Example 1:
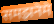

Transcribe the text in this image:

समझनेमे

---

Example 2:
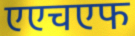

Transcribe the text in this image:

एएचएफ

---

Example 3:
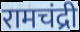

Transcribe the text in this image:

रामचंद्री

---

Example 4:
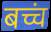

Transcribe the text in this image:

बच्चं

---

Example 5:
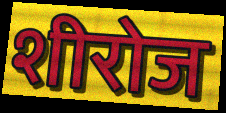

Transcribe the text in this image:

शीरोज